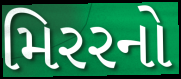
મિરરનો